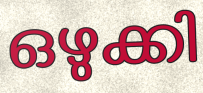
ഒഴുക്കി